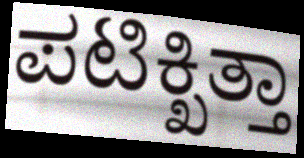
ಪಟಿಕ್ಖಿತ್ತಾ